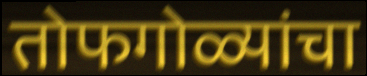
तोफगोळ्यांचा